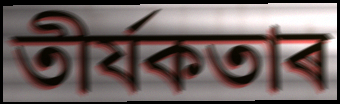
তীৰ্যকতাৰ